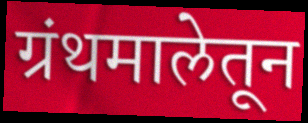
ग्रंथमालेतून